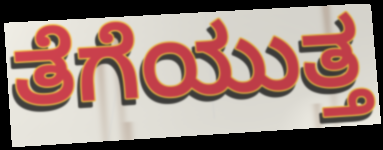
ತೆಗೆಯುತ್ತ